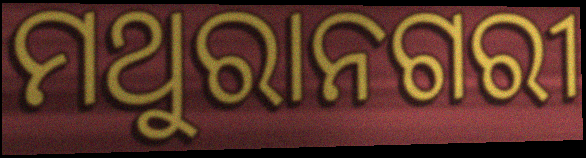
ମଥୁରାନଗରୀ